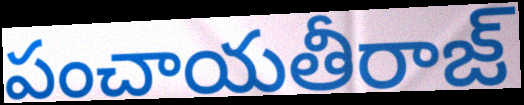
పంచాయతీరాజ్